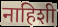
नाहिशी